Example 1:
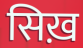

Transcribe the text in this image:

सिख़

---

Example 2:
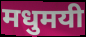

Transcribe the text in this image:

मधुमयी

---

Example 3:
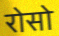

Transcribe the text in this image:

रोसो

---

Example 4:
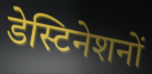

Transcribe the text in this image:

डेस्टिनेशनों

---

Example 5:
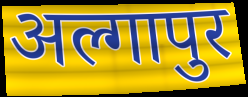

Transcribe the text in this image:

अल्गापुर